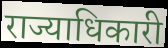
राज्याधिकारी